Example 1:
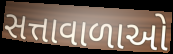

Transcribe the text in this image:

સત્તાવાળાઓ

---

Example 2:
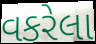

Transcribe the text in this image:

વકરેલા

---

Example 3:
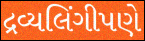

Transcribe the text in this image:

દ્રવ્યલિંગીપણે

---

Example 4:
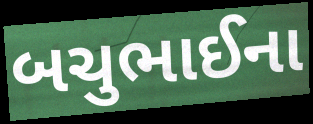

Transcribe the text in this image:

બચુભાઈના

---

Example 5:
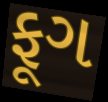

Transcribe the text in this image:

ફૂગ